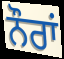
ਨੌਰਾਂ